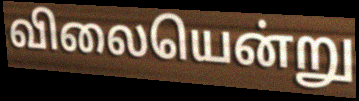
விலையென்று